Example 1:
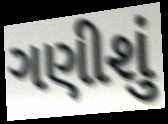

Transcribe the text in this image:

ગણીશું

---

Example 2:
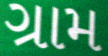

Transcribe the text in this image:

ગ્રામ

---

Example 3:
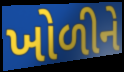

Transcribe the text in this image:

ખોળીને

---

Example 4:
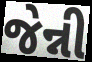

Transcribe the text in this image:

જેન્ની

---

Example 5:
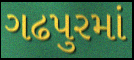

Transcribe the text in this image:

ગઢપુરમાં